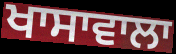
ਖਾਸਾਵਾਲਾ